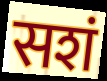
सशं